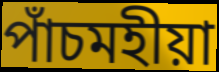
পাঁচমহীয়া